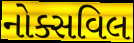
નોક્સવિલ